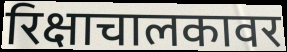
रिक्षाचालकावर